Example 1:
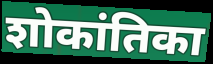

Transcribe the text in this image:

शोकांतिका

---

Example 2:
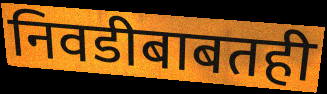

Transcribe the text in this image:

निवडीबाबतही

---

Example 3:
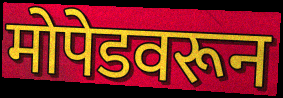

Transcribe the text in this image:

मोपेडवरून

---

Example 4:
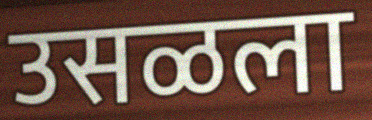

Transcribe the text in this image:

उसळला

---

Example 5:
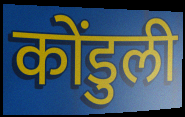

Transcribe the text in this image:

कोंडुली